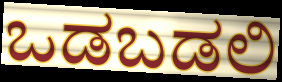
ಒಡಬಡಲಿ